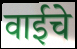
वाईचे